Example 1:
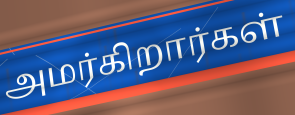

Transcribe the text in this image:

அமர்கிறார்கள்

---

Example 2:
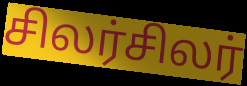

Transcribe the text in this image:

சிலர்சிலர்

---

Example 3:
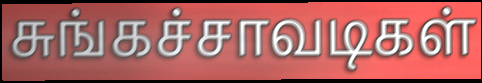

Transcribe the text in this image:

சுங்கச்சாவடிகள்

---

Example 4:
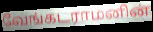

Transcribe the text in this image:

வேங்கடராமனின்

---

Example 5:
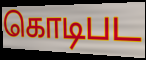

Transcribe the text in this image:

கொடிபட